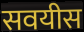
सवयीस